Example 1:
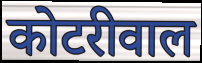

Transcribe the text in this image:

कोटरीवाल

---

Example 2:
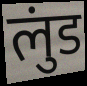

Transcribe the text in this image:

लुंड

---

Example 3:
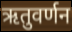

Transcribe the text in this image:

ऋतुवर्णन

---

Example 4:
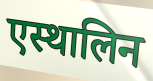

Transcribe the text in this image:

एस्थालिन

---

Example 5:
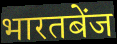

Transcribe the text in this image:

भारतबेंज